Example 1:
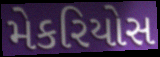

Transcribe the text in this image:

મેકરિયોસ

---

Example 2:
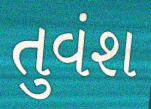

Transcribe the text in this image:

તુવંશ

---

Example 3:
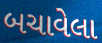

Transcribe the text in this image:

બચાવેલા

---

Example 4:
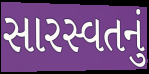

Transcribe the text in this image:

સારસ્વતનું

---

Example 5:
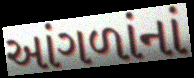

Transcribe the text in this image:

આંગળાંનાં